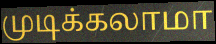
முடிக்கலாமா